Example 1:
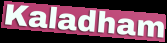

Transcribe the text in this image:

Kaladham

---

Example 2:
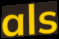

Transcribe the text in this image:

als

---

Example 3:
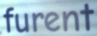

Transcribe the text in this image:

furent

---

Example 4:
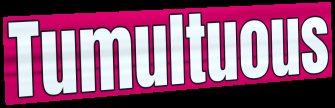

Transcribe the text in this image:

Tumultuous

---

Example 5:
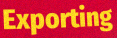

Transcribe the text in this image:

Exporting